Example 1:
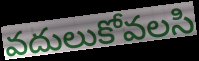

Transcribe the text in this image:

వదులుకోవలసి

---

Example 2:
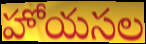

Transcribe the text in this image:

హోయసల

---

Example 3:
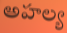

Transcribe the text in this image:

అహల్య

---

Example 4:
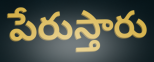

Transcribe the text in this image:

పేరుస్తారు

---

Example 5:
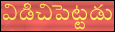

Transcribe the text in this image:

విడిచిపెట్టడు